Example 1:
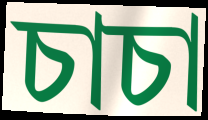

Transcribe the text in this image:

চাচা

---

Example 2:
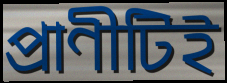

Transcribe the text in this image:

প্রাণীটিই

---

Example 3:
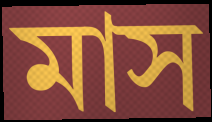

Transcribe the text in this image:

মাস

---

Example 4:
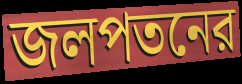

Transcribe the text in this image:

জলপতনের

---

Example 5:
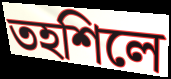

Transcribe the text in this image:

তহশিলে